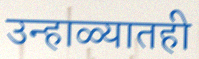
उन्हाळ्यातही